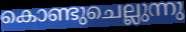
കൊണ്ടുചെല്ലുന്നു